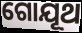
ଗୋଯୂଥ